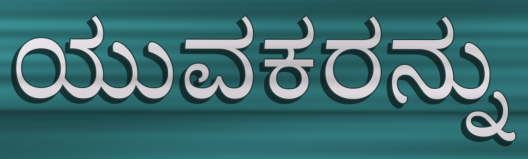
ಯುವಕರನ್ನು